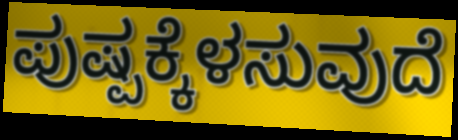
ಪುಷ್ಪಕ್ಕೆಳಸುವುದೆ